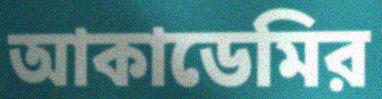
আকাডেমির